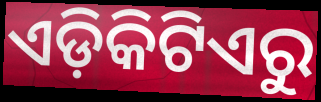
ଏଡ଼ିକିଟିଏରୁ